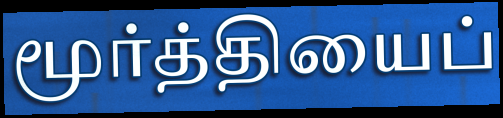
மூர்த்தியைப்